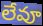
లేవూ